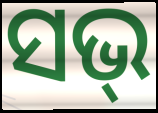
ସଭ୍